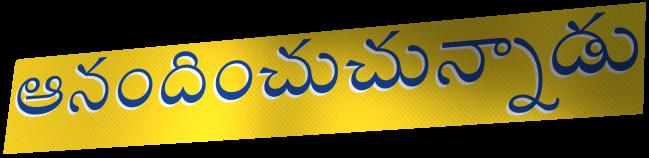
ఆనందించుచున్నాడు